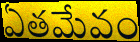
ఏతమేవం